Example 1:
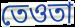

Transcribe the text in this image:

তেওতা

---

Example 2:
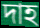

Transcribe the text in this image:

দাহ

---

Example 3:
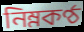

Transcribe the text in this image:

নিম্নকণ্ঠ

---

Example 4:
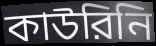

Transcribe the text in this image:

কাউরিনি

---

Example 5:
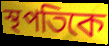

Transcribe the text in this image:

স্থপতিকে